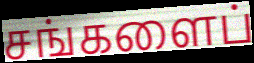
சங்களைப்